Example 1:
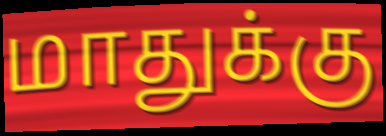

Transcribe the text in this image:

மாதுக்கு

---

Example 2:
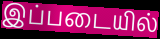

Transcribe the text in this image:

இப்படையில்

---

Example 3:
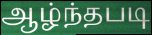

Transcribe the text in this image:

ஆழ்ந்தபடி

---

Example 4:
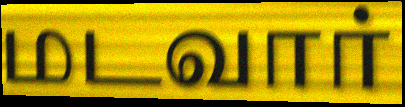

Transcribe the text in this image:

மடவார்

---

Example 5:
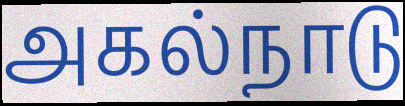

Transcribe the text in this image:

அகல்நாடு